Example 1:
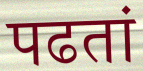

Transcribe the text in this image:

पढतां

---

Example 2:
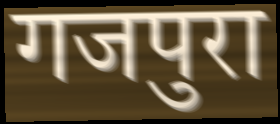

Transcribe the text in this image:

गजपुरा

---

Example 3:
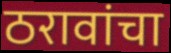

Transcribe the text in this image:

ठरावांचा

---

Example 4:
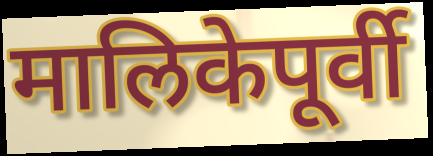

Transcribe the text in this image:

मालिकेपूर्वी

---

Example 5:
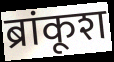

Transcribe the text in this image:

ब्रांकूश